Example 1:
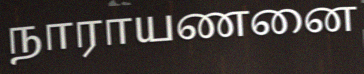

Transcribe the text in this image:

நாராயணனை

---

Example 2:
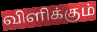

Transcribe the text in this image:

விளிக்கும்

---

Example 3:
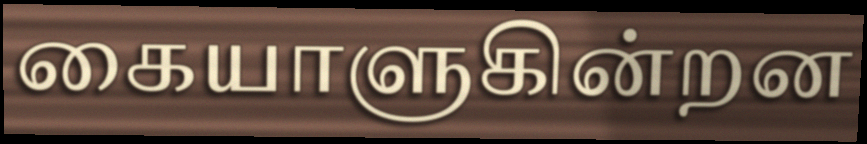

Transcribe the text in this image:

கையாளுகின்றன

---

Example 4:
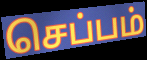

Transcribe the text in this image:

செப்பம்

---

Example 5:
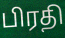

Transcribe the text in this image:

பிரதி